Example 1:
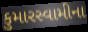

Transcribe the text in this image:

કુમારસ્વામીના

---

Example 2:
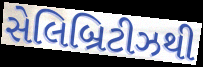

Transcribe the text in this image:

સેલિબ્રિટીઝથી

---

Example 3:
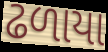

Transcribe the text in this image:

ઢળાયા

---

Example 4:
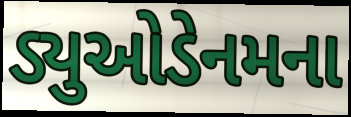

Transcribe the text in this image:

ડ્યુઓડેનમના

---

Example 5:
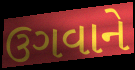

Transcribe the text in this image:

ઉગવાને